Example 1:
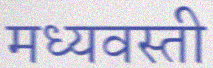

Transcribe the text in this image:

मध्यवस्ती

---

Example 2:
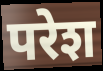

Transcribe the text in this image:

परेश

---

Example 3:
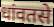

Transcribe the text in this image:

धांवतसे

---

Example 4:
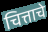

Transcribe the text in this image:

चित्ताचे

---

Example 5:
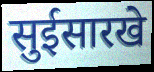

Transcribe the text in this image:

सुईसारखे